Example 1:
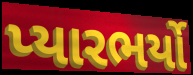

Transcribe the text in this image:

પ્યારભર્યો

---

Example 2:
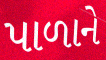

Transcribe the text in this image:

પાળાને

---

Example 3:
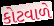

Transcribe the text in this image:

કોટવાળે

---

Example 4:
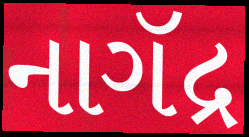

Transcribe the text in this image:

નાગૅદ્ર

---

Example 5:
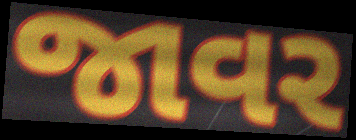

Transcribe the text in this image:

જાવર